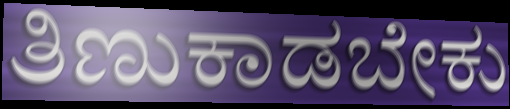
ತಿಣುಕಾಡಬೇಕು